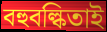
বহুবল্কিতাই